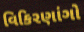
વિકિરણાંગો